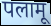
पलामू